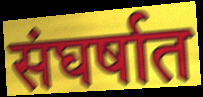
संघर्षात